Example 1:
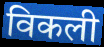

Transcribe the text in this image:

विकली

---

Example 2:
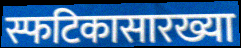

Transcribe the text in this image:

स्फटिकासारख्या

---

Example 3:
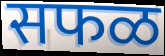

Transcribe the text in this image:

सफळ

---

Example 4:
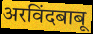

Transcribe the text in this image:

अरविंदबाबू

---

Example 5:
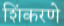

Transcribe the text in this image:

शिंकरणे